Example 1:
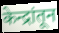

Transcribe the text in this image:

केन्द्रांतून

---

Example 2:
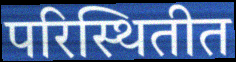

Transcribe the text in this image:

परिस्थितीत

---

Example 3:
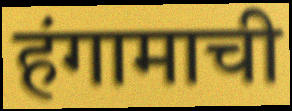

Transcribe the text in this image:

हंगामाची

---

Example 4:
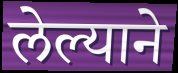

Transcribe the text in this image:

लेल्याने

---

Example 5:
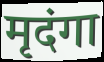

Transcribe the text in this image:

मृदंगा